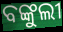
ବଙ୍କୁଲୀ